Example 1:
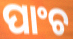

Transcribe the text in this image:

ପାଂଚ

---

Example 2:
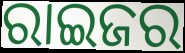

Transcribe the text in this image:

ରାଇଜର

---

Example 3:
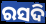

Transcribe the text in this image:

ରସଦି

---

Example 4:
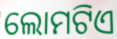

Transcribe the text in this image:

ଲୋମଟିଏ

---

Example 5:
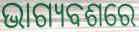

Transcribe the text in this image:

ଭାଗ୍ୟବଶରେ